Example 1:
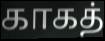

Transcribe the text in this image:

காகத்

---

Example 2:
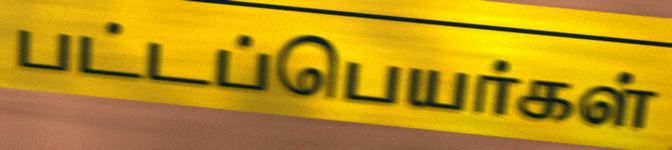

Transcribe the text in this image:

பட்டப்பெயர்கள்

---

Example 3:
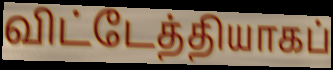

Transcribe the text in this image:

விட்டேத்தியாகப்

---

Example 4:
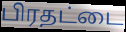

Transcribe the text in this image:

பிரதட்டை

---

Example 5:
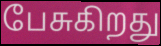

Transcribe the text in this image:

பேசுகிறது